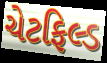
ચેટફિલ્ડ